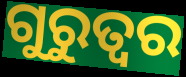
ଗୁରୁତ୍ବର